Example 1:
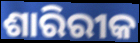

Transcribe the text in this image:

ଶାରିରୀକ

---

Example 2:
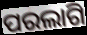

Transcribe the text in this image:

ପରଲାଗି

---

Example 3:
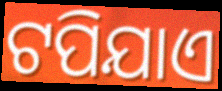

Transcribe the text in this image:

ଟପିଯାଏ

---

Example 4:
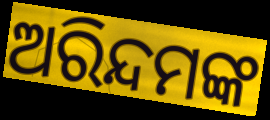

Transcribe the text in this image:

ଅରିନ୍ଦମଙ୍କ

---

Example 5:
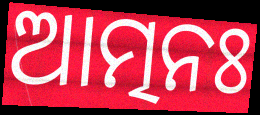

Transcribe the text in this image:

ଆତ୍ମନଃ